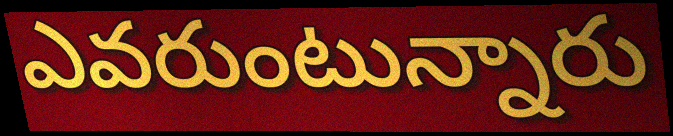
ఎవరుంటున్నారు